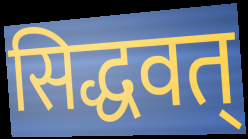
सिद्धवत्